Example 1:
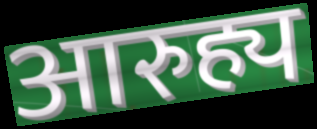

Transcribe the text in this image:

आरुह्य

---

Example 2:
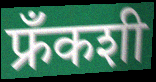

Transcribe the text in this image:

फ्रँकशी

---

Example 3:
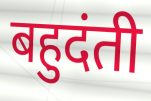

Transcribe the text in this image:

बहुदंती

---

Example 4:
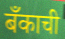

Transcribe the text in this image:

बँकाची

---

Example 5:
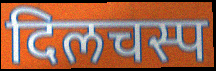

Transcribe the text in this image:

दिलचस्प